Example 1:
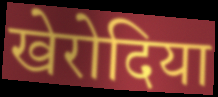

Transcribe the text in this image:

खेरोदिया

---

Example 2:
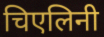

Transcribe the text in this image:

चिएलिनी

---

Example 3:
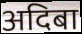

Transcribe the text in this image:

अदिबा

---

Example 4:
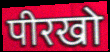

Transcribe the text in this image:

पीरखो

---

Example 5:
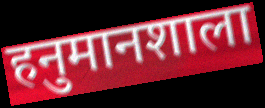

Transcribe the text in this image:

हनुमानशाला